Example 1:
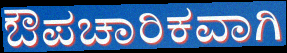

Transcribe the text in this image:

ಔಪಚಾರಿಕವಾಗಿ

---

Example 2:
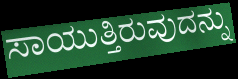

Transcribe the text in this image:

ಸಾಯುತ್ತಿರುವುದನ್ನು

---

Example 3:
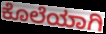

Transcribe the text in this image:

ಕೊಲೆಯಾಗಿ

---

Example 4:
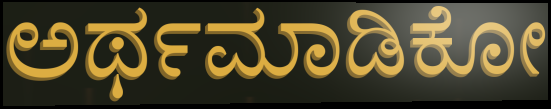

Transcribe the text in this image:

ಅರ್ಥಮಾಡಿಕೋ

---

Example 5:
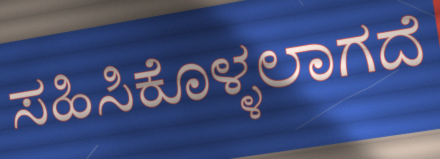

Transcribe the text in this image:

ಸಹಿಸಿಕೊಳ್ಳಲಾಗದೆ